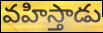
వహిస్తాడు